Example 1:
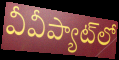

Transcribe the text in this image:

వీవీప్యాట్‌లో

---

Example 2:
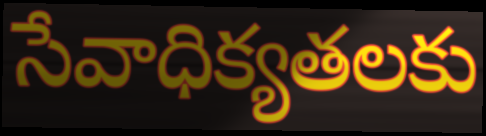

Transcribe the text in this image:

సేవాధిక్యతలకు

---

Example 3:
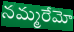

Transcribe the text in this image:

నమ్మరేమో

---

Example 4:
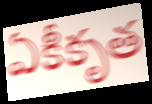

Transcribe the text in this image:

ఏకీకృత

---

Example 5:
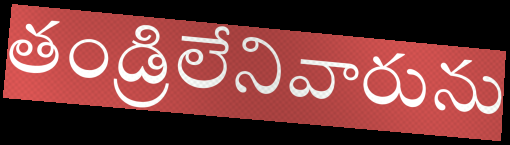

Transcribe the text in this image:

తండ్రిలేనివారును